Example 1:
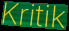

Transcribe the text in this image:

Kritik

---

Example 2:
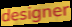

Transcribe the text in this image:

designer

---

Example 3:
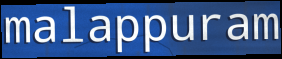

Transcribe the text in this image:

malappuram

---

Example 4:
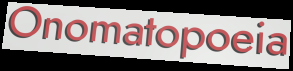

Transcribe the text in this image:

Onomatopoeia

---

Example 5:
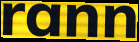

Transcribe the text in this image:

rann